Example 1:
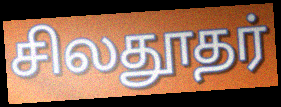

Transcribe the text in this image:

சிலதூதர்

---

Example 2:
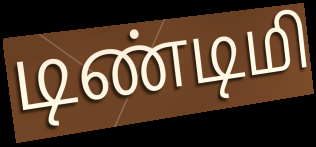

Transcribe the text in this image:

டிண்டிமி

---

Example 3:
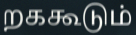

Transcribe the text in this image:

றககூடும்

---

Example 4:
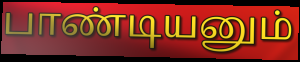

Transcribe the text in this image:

பாண்டியனும்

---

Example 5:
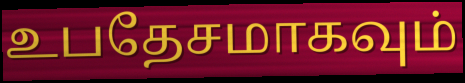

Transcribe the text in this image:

உபதேசமாகவும்